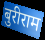
बुरीराम